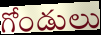
గోండులు